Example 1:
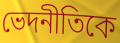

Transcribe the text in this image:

ভেদনীতিকে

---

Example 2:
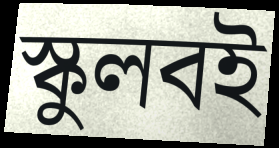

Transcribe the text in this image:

স্কুলবই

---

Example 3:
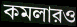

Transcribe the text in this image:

কমলারও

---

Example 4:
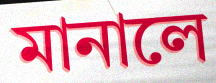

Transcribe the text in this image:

মানালে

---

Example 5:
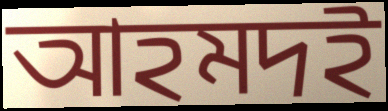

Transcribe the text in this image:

আহমদই